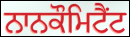
ਨਾਨਕੌਮਿਟੈਂਟ